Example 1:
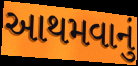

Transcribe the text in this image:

આથમવાનું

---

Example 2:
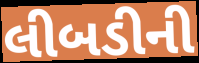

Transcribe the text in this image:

લીબડીની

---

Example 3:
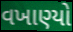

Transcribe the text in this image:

વખાણ્યો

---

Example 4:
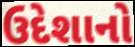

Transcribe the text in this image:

ઉદેશાનો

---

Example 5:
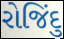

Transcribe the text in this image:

રોજિંદુ